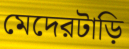
মেদেরটাড়ি